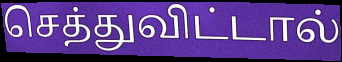
செத்துவிட்டால்